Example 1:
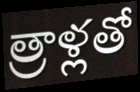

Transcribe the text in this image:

త్రాళ్లతో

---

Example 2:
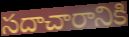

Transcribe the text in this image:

సదాచారానికి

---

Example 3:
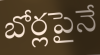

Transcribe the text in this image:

బోర్లపైనే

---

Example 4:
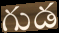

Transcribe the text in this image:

గుడ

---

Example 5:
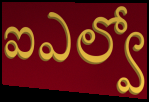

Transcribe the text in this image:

ఐఎల్వో